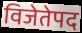
विजेतेपद